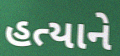
હત્યાને